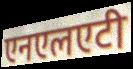
एनएलएटी